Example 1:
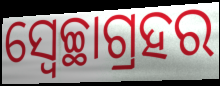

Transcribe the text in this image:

ସ୍ବେଚ୍ଛାଗ୍ରହର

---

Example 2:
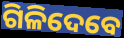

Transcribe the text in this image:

ଗିଳିଦେବେ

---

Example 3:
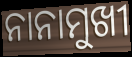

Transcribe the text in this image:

ନାନାମୁଖୀ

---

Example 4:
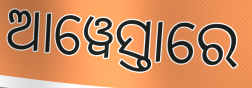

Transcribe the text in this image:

ଆୱେସ୍ତାରେ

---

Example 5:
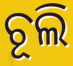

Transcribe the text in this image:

ଚୂଲି